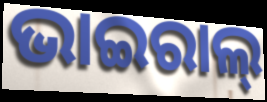
ଭାଇରାଲ୍